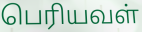
பெரியவள்